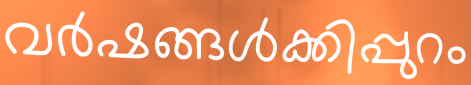
വർഷങ്ങൾക്കിപ്പുറം